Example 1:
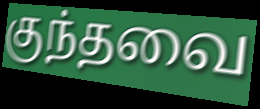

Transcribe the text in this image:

குந்தவை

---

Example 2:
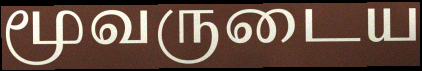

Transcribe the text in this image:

மூவருடைய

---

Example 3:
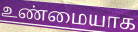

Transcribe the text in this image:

உண்மையாக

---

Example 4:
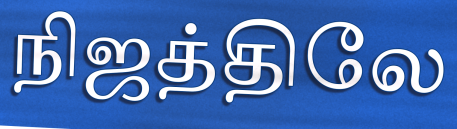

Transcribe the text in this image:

நிஜத்திலே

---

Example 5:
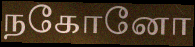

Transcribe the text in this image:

நகோனோ